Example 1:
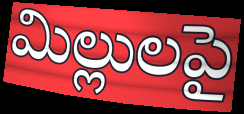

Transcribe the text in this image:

మిల్లులపై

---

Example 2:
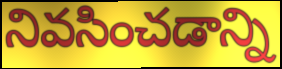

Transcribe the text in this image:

నివసించడాన్ని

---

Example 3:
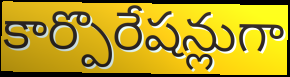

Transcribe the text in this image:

కార్పొరేషన్లుగా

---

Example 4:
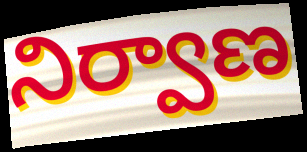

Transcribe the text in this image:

నిర్వాణ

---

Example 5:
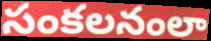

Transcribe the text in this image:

సంకలనంలా